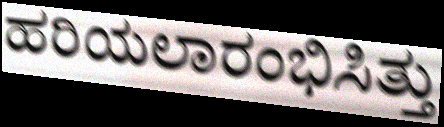
ಹರಿಯಲಾರಂಭಿಸಿತ್ತು